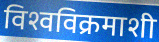
विश्वविक्रमाशी